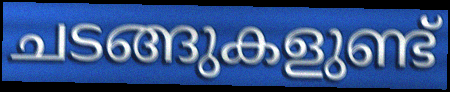
ചടങ്ങുകളുണ്ട്